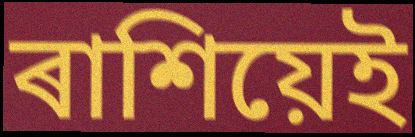
ৰাশিয়েই